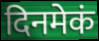
दिनमेकं